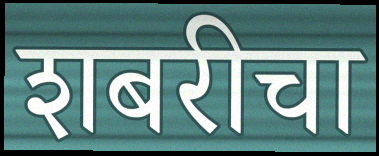
शबरीचा